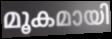
മൂകമായി